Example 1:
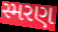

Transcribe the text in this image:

સ્મરણ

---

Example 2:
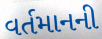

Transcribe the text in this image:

વર્તમાનની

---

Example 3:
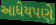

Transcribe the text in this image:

આધેયપણે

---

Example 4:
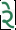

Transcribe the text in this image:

રે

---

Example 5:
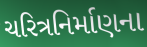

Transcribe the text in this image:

ચરિત્રનિર્માણના